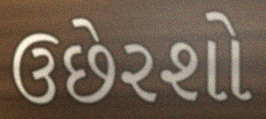
ઉછેરશો